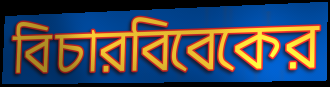
বিচারবিবেকের